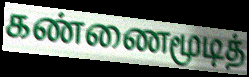
கண்ணைமூடித்